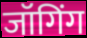
जॉगिंग